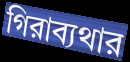
গিরাব্যথার